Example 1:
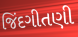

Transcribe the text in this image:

જિંદગીતણી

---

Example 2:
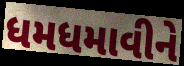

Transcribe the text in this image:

ધમધમાવીને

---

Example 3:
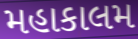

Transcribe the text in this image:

મહાકાલમ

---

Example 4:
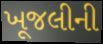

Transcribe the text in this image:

ખૂજલીની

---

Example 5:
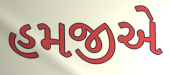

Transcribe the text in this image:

હમજીએ